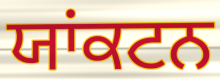
ਯਾਂਕਟਨ